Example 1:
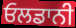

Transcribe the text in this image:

ਓਲਡਾਨੀ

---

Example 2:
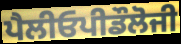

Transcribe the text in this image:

ਪੈਲੀਓਪੀਡੌਲੋਜੀ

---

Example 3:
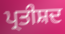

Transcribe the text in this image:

ਪ੍ਰਤੀਸ਼ਦ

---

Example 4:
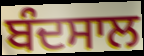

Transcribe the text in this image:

ਬੰਦਸਾਲ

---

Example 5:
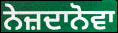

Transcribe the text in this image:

ਨੇਜ਼ਦਾਨੋਵਾ